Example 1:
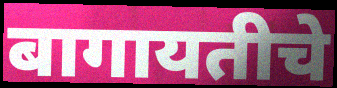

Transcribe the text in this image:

बागायतीचे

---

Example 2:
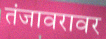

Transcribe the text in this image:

तंजावरावर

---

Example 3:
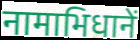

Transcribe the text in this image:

नामाभिधानें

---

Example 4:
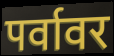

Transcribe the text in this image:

पर्वावर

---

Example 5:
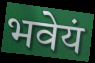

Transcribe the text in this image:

भवेयं